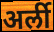
अर्ली